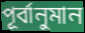
পূৰ্বানুমান